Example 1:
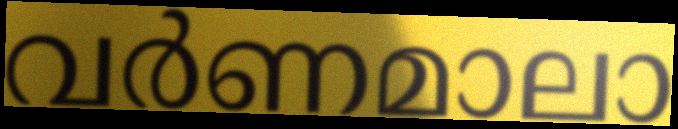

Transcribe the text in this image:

വർണമാലാ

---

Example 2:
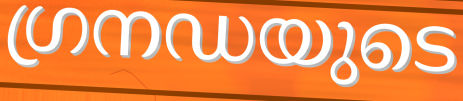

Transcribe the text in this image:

ഗ്രനഡയുടെ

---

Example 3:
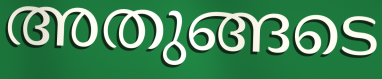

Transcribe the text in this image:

അതുങ്ങടെ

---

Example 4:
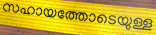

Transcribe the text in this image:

സഹായത്തോടെയുള്ള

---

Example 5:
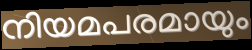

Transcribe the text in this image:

നിയമപരമായും